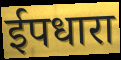
ईपधारा